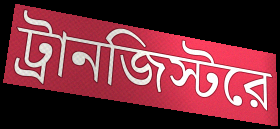
ট্রানজিস্টরে